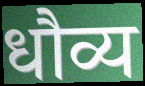
धौव्य